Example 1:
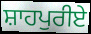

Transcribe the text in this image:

ਸ਼ਾਹਪੁਰੀਏ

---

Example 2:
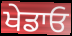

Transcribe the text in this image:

ਖੇਡਾਓ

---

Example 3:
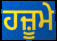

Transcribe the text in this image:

ਹਜ਼ੂਮੇ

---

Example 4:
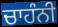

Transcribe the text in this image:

ਚਾਹੰਨੀ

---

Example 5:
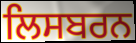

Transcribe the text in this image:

ਲਿਸਬਰਨ